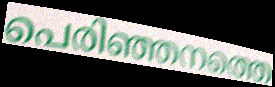
പെരിഞ്ഞനത്തെ